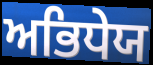
ਅਭਿਧੇਯ